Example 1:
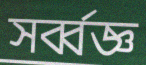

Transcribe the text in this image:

সৰ্ব্বজ্ঞ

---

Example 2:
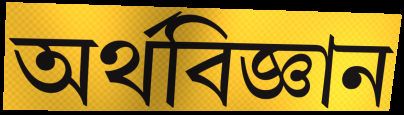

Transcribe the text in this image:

অৰ্থবিজ্ঞান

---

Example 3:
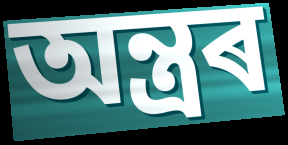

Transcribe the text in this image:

অন্ত্ৰৰ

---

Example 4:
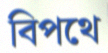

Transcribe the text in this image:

বিপথে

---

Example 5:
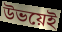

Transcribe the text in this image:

উভয়েই